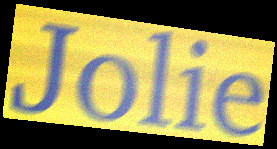
Jolie